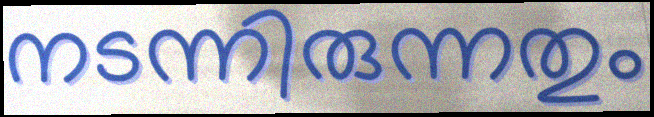
നടന്നിരുന്നതും